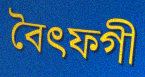
বৈৎফগী